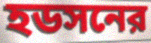
হডসনের